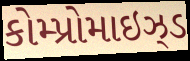
કોમ્પ્રોમાઇઝ્ડ